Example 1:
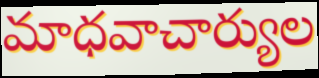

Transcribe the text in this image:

మాధవాచార్యుల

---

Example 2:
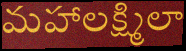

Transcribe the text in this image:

మహాలక్ష్మిలా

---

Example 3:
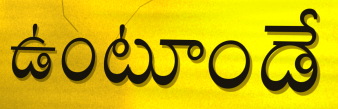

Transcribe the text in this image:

ఉంటూండే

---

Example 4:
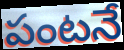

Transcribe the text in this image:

పంటనే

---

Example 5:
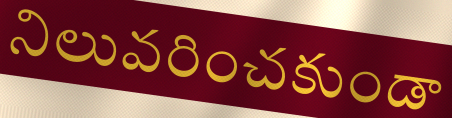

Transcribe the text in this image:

నిలువరించకుండా